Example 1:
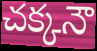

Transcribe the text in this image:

చక్కనౌ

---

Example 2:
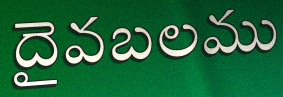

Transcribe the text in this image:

దైవబలము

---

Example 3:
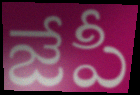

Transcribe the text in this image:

జేపీ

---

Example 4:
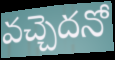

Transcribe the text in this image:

వచ్చెదనో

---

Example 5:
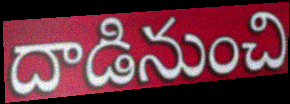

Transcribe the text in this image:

దాడినుంచి